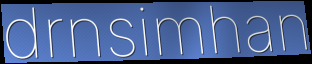
drnsimhan